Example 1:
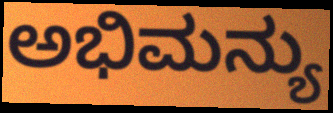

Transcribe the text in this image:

ಅಭಿಮನ್ಯು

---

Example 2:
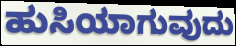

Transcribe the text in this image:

ಹುಸಿಯಾಗುವುದು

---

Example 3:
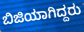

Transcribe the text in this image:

ಬಿಜಿಯಾಗಿದ್ದರು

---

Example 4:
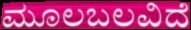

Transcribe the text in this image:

ಮೂಲಬಲವಿದೆ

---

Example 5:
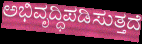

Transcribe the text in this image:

ಅಭಿವೃದ್ಧಿಪಡಿಸುತ್ತದೆ